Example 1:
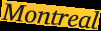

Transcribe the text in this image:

Montreal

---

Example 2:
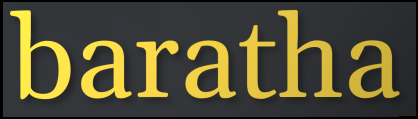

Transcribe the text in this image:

baratha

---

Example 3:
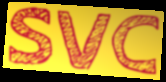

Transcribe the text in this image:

SVC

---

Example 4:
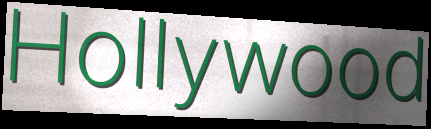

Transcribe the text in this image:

Hollywood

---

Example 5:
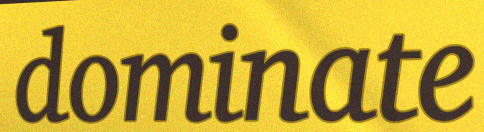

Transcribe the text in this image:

dominate